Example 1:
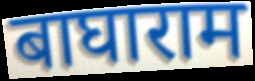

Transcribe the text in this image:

बाघाराम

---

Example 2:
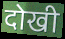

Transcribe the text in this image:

दोखी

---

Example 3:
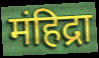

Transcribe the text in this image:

मंहिद्रा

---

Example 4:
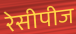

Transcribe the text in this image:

रेसीपीज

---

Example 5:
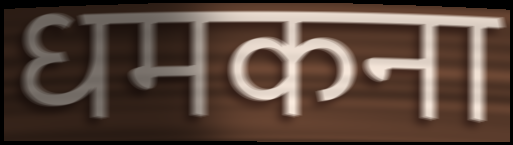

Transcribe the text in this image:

धमकना